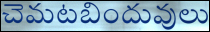
చెమటబిందువులు